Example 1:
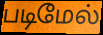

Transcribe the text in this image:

படிமேல்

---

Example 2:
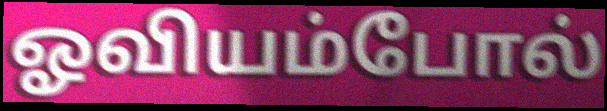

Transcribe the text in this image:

ஓவியம்போல்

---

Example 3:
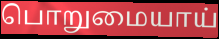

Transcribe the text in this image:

பொறுமையாய்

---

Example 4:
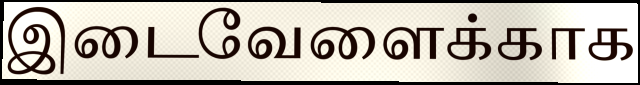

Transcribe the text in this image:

இடைவேளைக்காக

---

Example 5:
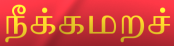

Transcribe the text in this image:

நீக்கமறச்